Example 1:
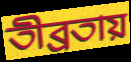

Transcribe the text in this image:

তীব্রতায়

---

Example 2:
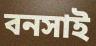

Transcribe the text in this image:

বনসাই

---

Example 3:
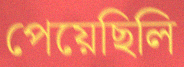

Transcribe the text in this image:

পেয়েছিলি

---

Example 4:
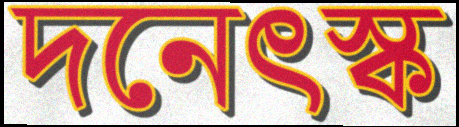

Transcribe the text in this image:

দনেৎস্ক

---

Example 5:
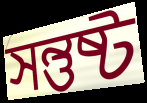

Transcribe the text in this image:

সন্তুষ্ট